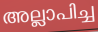
അല്ലാപിച്ച